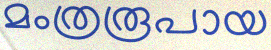
മംത്രരൂപായ